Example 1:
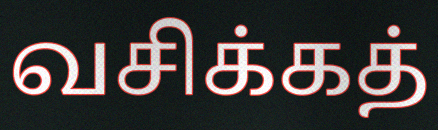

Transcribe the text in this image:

வசிக்கத்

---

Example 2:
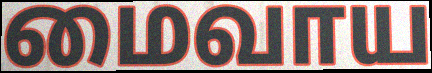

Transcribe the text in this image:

மைவாய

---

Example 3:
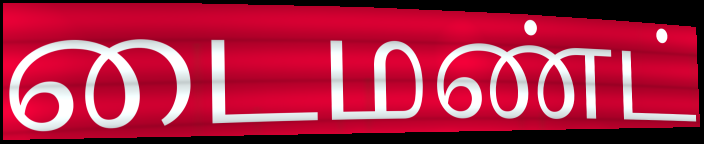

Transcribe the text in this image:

டைமண்ட்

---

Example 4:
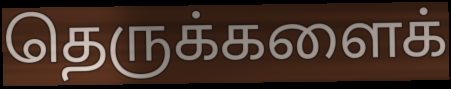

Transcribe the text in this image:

தெருக்களைக்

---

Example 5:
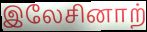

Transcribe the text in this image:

இலேசினாற்